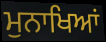
ਮੁਨਾਖਿਆਂ